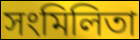
সংমিলিতা